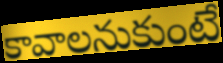
కావాలనుకుంటే